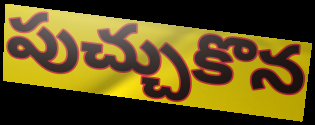
పుచ్చుకొన